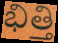
భిత్తి